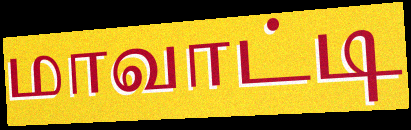
மாவாட்டி